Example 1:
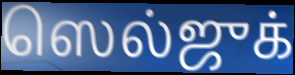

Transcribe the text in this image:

ஸெல்ஜுக்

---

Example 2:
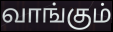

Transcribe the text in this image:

வாங்கும்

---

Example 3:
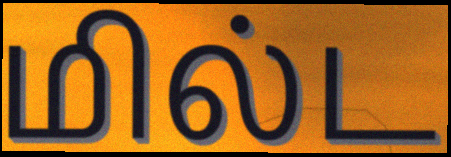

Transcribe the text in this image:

மில்ட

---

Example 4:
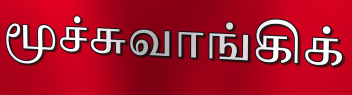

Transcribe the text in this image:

மூச்சுவாங்கிக்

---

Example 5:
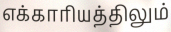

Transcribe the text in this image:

எக்காரியத்திலும்